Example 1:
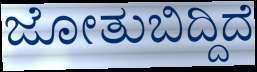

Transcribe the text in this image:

ಜೋತುಬಿದ್ದಿದೆ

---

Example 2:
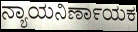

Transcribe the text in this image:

ನ್ಯಾಯನಿರ್ಣಾಯಕ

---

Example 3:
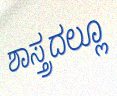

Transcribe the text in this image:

ಶಾಸ್ತ್ರದಲ್ಲೂ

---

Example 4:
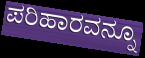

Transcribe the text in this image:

ಪರಿಹಾರವನ್ನೂ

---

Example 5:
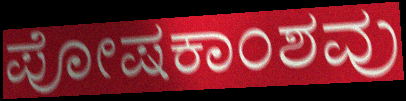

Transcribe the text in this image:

ಪೋಷಕಾಂಶವು